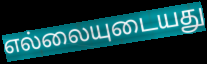
எல்லையுடையது